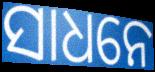
ସାଧନେ